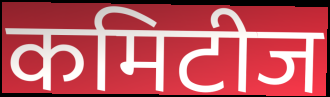
कमिटीज